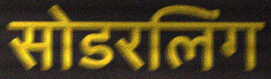
सोडरलिंग